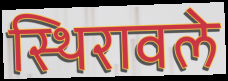
स्थिरावले